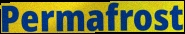
Permafrost